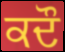
ਕਦੌ